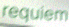
requiem